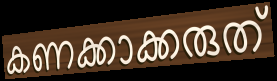
കണക്കാക്കരുത്